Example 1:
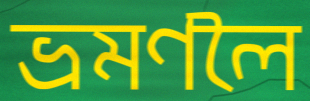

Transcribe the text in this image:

ভ্ৰমণলৈ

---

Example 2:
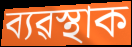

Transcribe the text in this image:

ব্যৱস্থাক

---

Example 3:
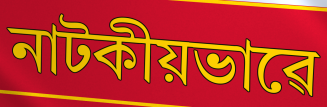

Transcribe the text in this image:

নাটকীয়ভাৱে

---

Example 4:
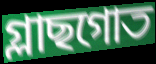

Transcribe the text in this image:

গ্লাছগোত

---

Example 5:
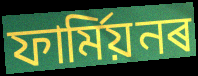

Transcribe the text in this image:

ফাৰ্মিয়নৰ